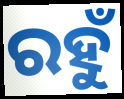
ରହୁଁ